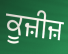
ਕੂਜ਼ੀਜ਼